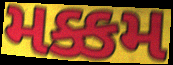
મક્કમ